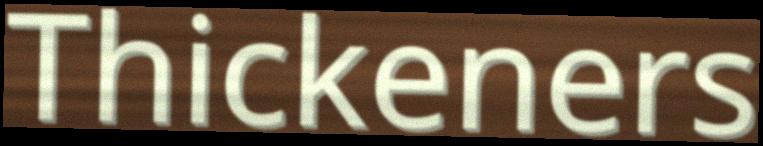
Thickeners